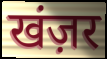
खंज़र